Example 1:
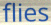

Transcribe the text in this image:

flies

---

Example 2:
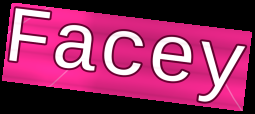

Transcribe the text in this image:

Facey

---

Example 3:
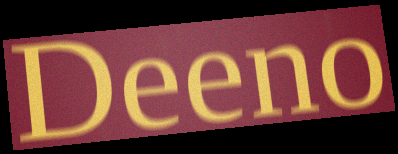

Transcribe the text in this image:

Deeno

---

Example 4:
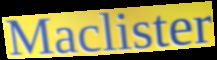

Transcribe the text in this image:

Maclister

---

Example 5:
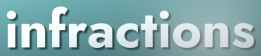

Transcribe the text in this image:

infractions